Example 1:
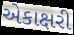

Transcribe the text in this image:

એકાક્ષરી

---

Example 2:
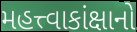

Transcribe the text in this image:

મહત્ત્વાકાંક્ષાનો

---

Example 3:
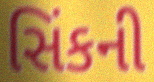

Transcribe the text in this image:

સિંકની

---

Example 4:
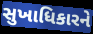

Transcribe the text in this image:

સુખાધિકારને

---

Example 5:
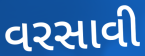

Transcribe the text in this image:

વરસાવી